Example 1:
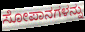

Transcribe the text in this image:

ಸೋಪಾನಗಳನ್ನು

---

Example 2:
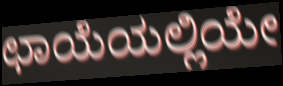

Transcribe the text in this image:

ಛಾಯೆಯಲ್ಲಿಯೇ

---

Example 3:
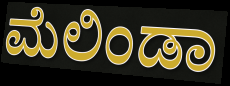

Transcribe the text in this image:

ಮೆಲಿಂಡಾ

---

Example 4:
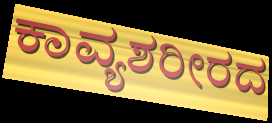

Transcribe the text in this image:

ಕಾವ್ಯಶರೀರದ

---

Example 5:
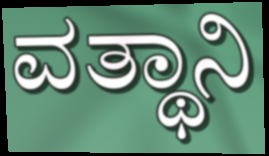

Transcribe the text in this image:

ವತ್ಥಾನಿ